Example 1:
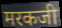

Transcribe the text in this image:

मरकजी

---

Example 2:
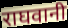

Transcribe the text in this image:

राघवानी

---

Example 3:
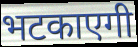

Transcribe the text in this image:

भटकाएगी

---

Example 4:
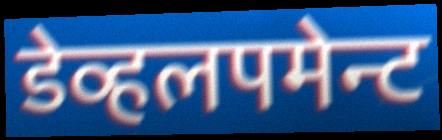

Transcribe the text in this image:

डेव्हलपमेन्ट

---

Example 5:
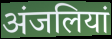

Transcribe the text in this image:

अंजलियां